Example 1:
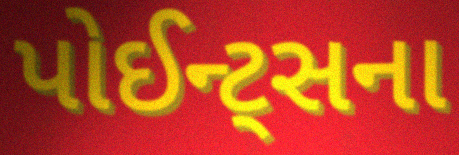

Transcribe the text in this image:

પોઈન્ટ્સના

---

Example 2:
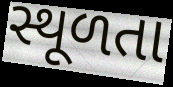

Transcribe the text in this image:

સ્થૂળતા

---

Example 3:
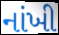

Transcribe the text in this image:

નાંખી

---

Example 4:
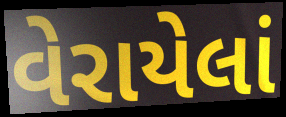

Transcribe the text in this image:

વેરાયેલાં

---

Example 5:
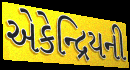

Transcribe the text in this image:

એકેન્દ્રિયની